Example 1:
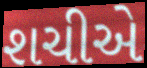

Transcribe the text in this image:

શચીએ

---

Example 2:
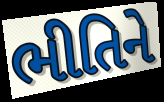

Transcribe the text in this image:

ભીતિને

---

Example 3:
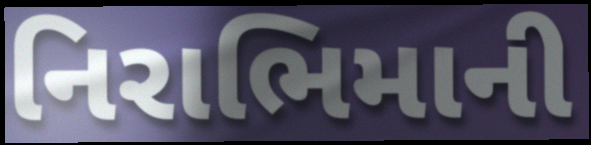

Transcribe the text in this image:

નિરાભિમાની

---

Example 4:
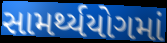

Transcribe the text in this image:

સામર્થ્યયોગમાં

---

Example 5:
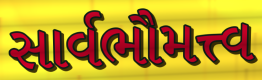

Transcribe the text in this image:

સાર્વભૌમત્ત્વ